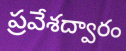
ప్రవేశద్వారం